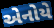
એનોયે